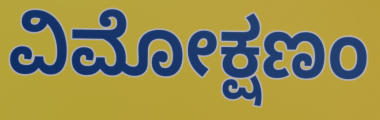
ವಿಮೋಕ್ಷಣಂ